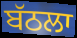
ਬੱਠਲਾ